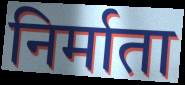
निर्माता